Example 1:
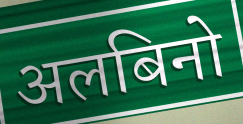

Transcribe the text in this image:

अलबिनो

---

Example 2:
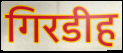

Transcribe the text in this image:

गिरडीह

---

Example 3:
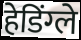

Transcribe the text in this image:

हेडिंग्‍ले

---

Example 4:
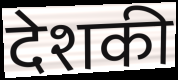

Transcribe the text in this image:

देशकी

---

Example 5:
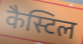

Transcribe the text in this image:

कैस्टिल